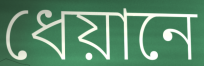
ধেয়ানে